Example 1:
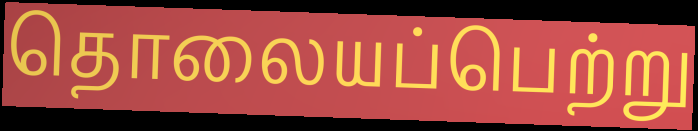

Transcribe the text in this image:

தொலையப்பெற்று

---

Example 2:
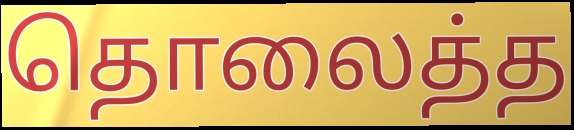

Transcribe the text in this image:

தொலைத்த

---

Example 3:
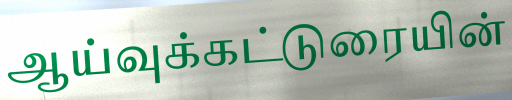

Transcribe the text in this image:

ஆய்வுக்கட்டுரையின்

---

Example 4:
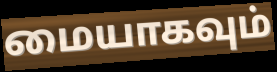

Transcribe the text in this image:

மையாகவும்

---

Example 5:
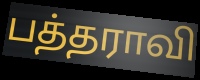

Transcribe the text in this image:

பத்தராவி